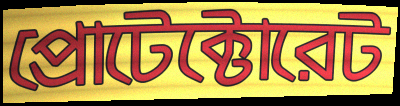
প্রোটেক্টোরেট